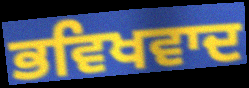
ਭਵਿਖਵਾਦ